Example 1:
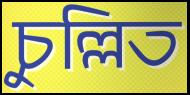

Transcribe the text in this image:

চুল্লিত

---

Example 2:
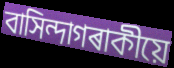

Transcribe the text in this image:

বাসিন্দাগৰাকীয়ে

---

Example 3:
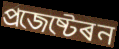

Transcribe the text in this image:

প্ৰজেষ্টেৰন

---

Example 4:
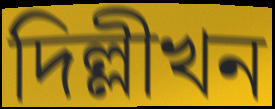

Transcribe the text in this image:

দিল্লীখন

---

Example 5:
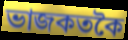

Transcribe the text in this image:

ভাজকতকৈ